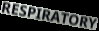
RESPIRATORY